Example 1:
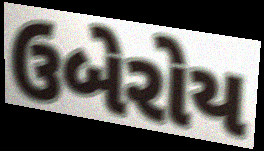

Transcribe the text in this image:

ઉબેરોય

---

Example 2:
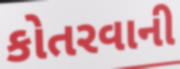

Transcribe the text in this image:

કોતરવાની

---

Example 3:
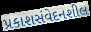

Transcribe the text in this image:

પ્રકાશસંવેદનશીલ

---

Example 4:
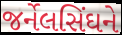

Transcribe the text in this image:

જર્નેલસિંઘને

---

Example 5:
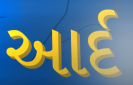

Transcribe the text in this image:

આર્દ